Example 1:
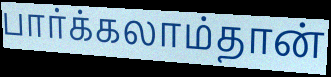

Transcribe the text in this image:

பார்க்கலாம்தான்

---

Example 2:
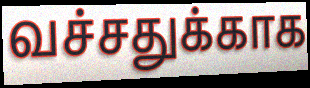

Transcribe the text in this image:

வச்சதுக்காக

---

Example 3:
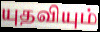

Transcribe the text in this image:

யுதவியும்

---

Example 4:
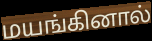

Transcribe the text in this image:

மயங்கினால்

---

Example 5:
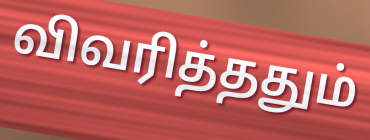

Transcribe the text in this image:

விவரித்ததும்